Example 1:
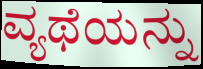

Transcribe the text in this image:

ವ್ಯಥೆಯನ್ನು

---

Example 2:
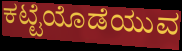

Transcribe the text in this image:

ಕಟ್ಟೆಯೊಡೆಯುವ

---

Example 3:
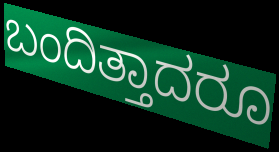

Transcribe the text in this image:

ಬಂದಿತ್ತಾದರೂ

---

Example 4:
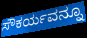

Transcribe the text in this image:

ಸೌಕರ್ಯವನ್ನೂ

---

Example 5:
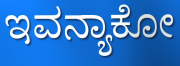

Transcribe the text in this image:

ಇವನ್ಯಾಕೋ